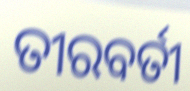
ତୀରବର୍ତୀ